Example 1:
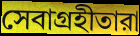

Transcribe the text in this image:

সেবাগ্রহীতারা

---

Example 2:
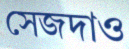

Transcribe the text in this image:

সেজদাও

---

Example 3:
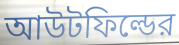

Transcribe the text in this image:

আউটফিল্ডের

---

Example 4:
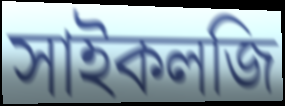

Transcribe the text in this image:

সাইকলজি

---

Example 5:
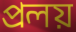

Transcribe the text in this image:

প্রলয়